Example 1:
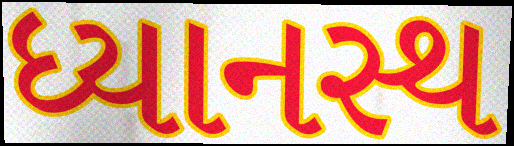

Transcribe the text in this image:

ધ્યાનસ્થ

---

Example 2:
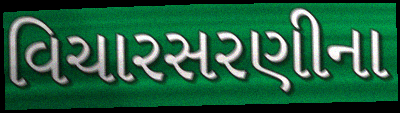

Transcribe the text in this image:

વિચારસરણીના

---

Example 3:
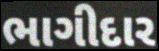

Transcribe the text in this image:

ભાગીદાર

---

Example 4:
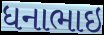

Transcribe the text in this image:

ધનાભાઇ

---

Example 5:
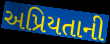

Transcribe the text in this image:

અપ્રિયતાની